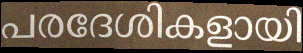
പരദേശികളായി